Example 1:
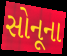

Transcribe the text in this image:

સોનૂના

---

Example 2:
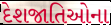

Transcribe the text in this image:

દેશજાતિઓના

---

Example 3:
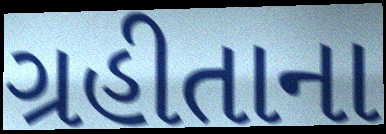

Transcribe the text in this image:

ગ્રહીતાના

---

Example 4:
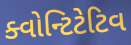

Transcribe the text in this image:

ક્વોન્ટિટેટિવ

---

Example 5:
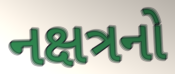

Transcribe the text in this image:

નક્ષત્રનો